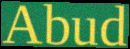
Abud